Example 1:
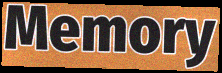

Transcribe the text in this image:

Memory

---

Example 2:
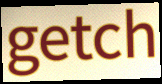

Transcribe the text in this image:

getch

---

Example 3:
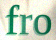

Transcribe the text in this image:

fro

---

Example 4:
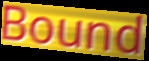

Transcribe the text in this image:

Bound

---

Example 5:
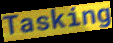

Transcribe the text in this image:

Tasking